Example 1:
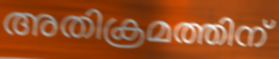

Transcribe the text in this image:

അതിക്രമത്തിന്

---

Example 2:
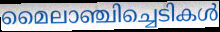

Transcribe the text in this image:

മൈലാഞ്ചിച്ചെടികൾ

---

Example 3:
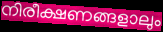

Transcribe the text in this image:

നിരീക്ഷണങ്ങളാലും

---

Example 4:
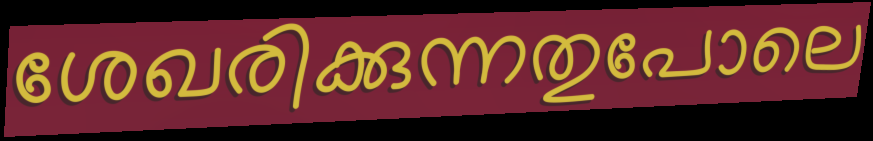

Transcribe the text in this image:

ശേഖരിക്കുന്നതുപോലെ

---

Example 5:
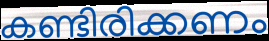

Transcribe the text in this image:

കണ്ടിരിക്കണം